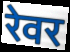
रेवर